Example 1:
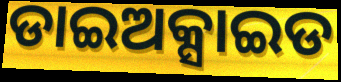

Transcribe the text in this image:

ଡାଇଅକ୍ସାଇଡ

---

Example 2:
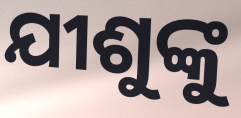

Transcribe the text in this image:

ଯୀଶୁଙ୍କୁ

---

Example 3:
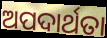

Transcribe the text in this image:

ଅପଦାର୍ଥତା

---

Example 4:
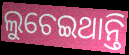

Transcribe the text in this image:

ଲୁଚେଇଥାନ୍ତି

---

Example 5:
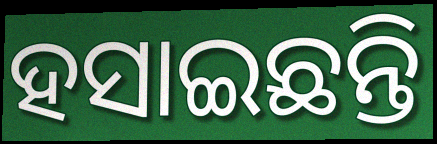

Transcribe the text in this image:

ହସାଇଛନ୍ତି